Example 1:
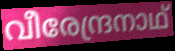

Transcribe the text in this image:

വീരേന്ദ്രനാഥ്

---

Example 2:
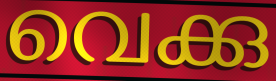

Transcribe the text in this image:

വെക്കു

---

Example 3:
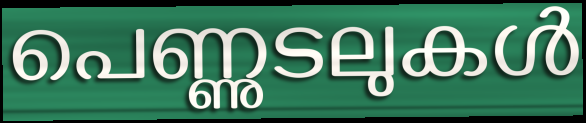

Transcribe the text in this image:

പെണ്ണുടലുകൾ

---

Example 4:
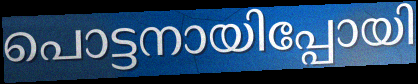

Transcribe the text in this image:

പൊട്ടനായിപ്പോയി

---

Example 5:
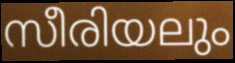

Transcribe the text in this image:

സീരിയലും